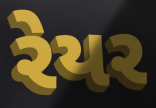
રેયર